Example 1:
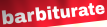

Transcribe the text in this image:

barbiturate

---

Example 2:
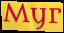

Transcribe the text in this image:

Myr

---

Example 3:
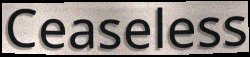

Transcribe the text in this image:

Ceaseless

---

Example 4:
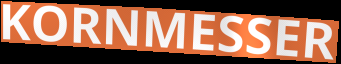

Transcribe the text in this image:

KORNMESSER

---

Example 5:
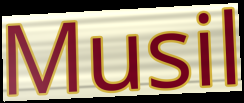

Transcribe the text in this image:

Musil